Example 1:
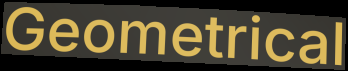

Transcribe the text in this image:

Geometrical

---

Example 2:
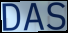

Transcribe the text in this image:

DAS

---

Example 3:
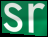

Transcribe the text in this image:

sr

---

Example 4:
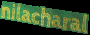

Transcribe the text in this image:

nilacharal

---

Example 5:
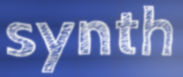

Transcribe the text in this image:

synth